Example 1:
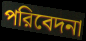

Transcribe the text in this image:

পরিবেদনা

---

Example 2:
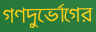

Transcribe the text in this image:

গণদুর্ভোগের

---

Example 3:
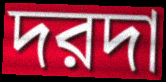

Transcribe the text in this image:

দরদা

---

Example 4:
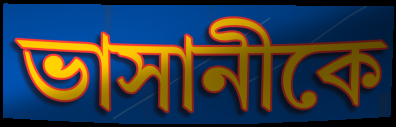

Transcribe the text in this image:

ভাসানীকে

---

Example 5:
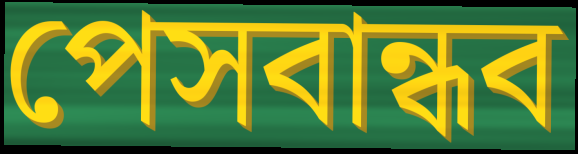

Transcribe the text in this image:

পেসবান্ধব